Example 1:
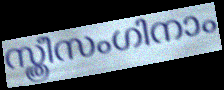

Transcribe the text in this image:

സ്ത്രീസംഗിനാം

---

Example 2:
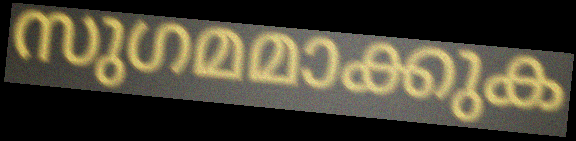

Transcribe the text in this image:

സുഗമമാക്കുക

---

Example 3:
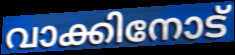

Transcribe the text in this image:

വാക്കിനോട്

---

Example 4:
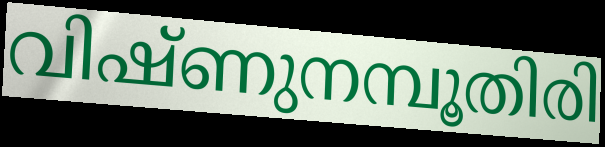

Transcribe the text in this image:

വിഷ്ണുനമ്പൂതിരി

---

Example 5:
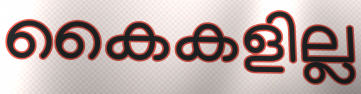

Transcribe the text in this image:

കൈകളില്ല